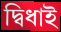
দ্বিধাই